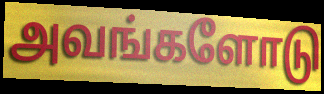
அவங்களோடு